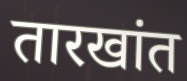
तारखांत